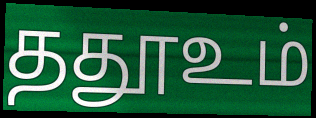
ததூஉம்